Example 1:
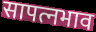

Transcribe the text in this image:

सापत्नभाव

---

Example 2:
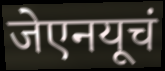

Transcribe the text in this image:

जेएनयूचं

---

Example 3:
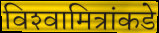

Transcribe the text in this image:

विश्वामित्रांकडे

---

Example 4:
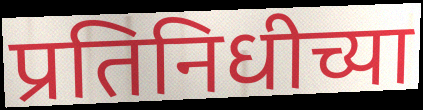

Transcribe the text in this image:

प्रतिनिधीच्या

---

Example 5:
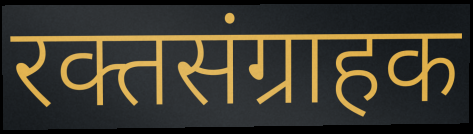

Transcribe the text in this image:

रक्तसंग्राहक